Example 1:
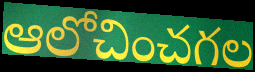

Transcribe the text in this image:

ఆలోచించగల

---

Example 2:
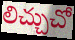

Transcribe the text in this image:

లిచ్చుచో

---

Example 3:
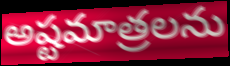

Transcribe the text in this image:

అష్టమాత్రలను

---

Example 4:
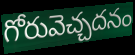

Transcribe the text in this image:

గోరువెచ్చదనం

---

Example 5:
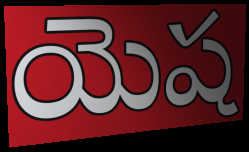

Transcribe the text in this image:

యెష